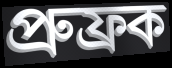
প্রুফ্রক